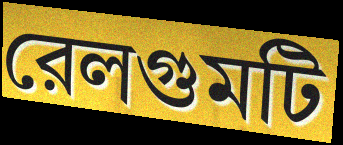
রেলগুমটি